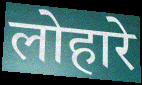
लोहारे